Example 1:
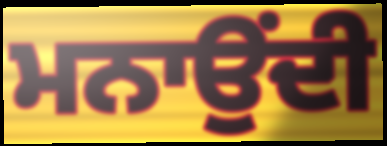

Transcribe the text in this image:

ਮਨਾਉਂਦੀ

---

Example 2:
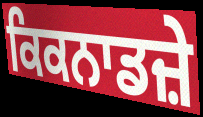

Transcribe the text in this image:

ਕਿਕਨਾਡਜ਼ੇ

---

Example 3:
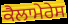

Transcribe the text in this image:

ਕੈਲਾਮੇਰੇਸ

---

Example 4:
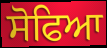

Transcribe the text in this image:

ਸੋਫਿਆ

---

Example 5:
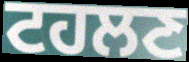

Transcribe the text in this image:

ਟਹਲਣ